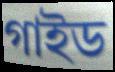
গাইড